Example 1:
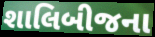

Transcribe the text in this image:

શાલિબીજના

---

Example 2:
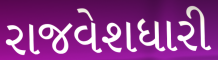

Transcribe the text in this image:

રાજવેશધારી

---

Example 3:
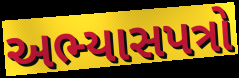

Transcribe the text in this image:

અભ્યાસપત્રો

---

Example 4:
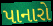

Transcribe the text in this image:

પાનારો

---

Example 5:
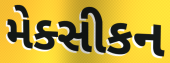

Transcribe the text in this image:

મેક્સીકન